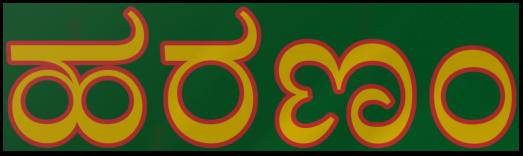
ಹರಣಂ